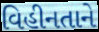
વિહીનતાને